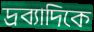
দ্রব্যাদিকে